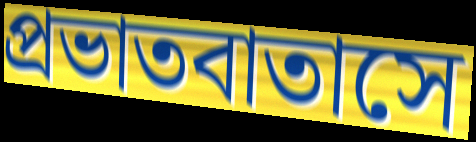
প্রভাতবাতাসে